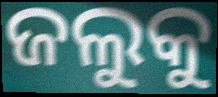
ଜଲୁକୁ